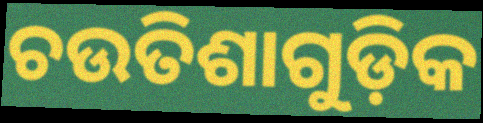
ଚଉତିଶାଗୁଡ଼ିକ